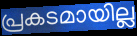
പ്രകടമായില്ല